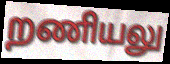
றணியலு